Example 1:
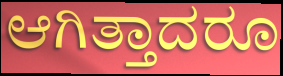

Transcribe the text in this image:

ಆಗಿತ್ತಾದರೂ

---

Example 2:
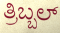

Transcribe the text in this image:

ತ್ರಿಬ್ಬಲ್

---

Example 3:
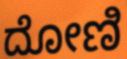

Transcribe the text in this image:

ದೋಣಿ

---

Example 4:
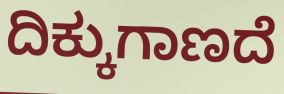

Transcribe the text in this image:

ದಿಕ್ಕುಗಾಣದೆ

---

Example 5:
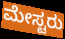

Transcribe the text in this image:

ಮೇಸ್ಟರು